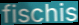
fischis